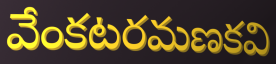
వేంకటరమణకవి